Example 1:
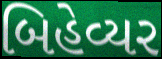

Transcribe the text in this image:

બિહેવ્યર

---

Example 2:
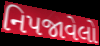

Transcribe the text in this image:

નિપજાવેલો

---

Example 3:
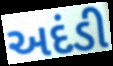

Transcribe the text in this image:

અદંડી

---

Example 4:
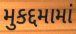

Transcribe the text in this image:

મુકદ્દમામાં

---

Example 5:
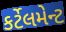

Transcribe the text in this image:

કર્ટેલમેન્ટ